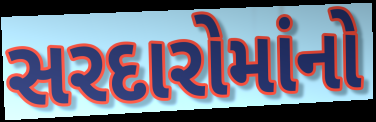
સરદારોમાંનો